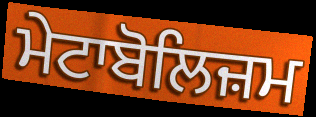
ਮੇਟਾਬੋਲਿਜ਼ਮ